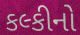
કલ્કીનો